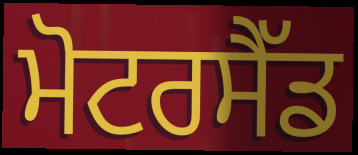
ਮੋਟਰਸੈੱਡ